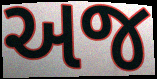
અજ